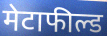
मेटाफील्ड